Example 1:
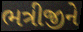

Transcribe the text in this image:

ભત્રીજીને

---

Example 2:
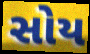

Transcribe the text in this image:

સોય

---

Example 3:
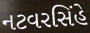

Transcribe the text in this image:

નટવરસિંહે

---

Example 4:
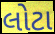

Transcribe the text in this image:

લોટા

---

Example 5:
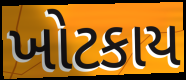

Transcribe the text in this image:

ખોટકાય